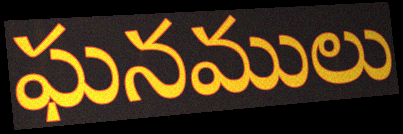
ఘనములు